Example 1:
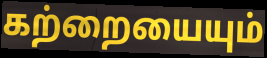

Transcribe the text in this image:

கற்றையையும்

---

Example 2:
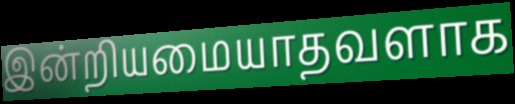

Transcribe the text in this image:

இன்றியமையாதவளாக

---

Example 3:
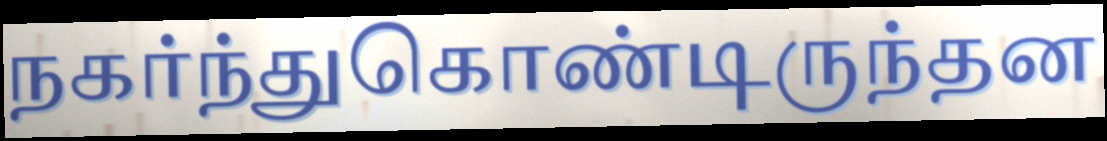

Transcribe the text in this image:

நகர்ந்துகொண்டிருந்தன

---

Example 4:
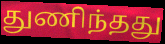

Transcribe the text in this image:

துணிந்தது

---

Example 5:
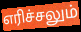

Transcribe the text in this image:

எரிச்சலும்